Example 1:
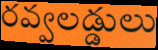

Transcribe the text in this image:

రవ్వలడ్డులు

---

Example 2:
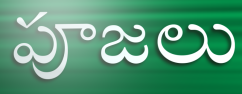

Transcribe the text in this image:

పూజలు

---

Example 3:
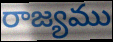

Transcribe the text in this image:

రాజ్యము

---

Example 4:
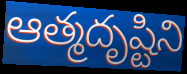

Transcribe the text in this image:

ఆత్మదృష్టిని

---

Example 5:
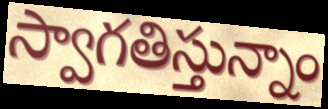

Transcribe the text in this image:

స్వాగతిస్తున్నాం